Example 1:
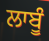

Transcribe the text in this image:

ਲਾਬੂੰ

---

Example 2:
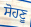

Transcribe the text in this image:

ਸੋਹਣੂ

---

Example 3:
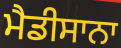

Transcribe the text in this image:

ਮੈਡੀਸਾਨਾ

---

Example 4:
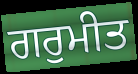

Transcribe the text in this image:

ਗਰੁਮੀਤ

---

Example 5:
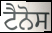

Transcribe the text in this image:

ਟੈਨੋਸ